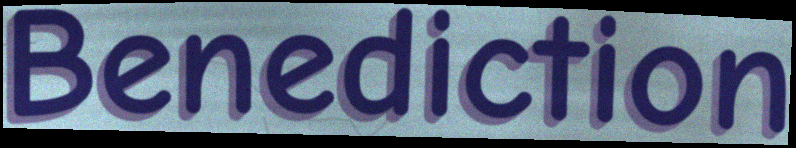
Benediction